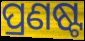
ପ୍ରଣଷ୍ଟ